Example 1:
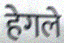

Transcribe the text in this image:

हेगले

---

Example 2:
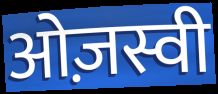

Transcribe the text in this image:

ओज़स्वी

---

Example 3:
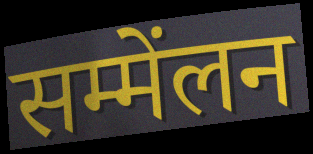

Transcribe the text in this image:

सम्मेंलन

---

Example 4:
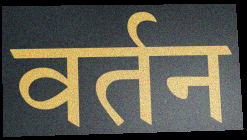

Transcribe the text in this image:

वर्तन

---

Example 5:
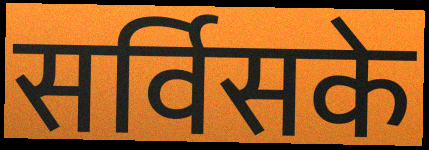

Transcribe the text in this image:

सर्विसके